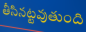
తీసినట్టవుతుంది